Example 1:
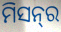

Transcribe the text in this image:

ମିସନ୍‌ର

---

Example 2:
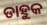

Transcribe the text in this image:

ଡାହୁକ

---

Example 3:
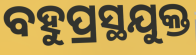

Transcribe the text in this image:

ବହୁପ୍ରସ୍ଥଯୁକ୍ତ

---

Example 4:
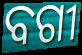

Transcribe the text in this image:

ବଗୀ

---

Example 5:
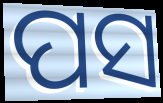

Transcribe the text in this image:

ପସ